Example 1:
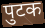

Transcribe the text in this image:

पुटक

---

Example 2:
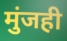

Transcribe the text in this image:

मुंजही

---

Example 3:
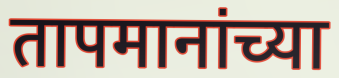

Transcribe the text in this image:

तापमानांच्या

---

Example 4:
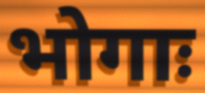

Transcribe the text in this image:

भोगाः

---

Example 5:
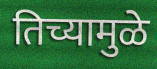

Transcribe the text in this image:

तिच्यामुळे